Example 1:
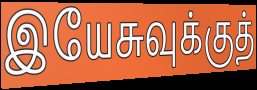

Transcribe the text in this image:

இயேசுவுக்குத்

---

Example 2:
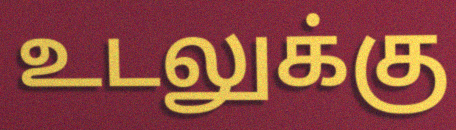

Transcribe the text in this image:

உடலுக்கு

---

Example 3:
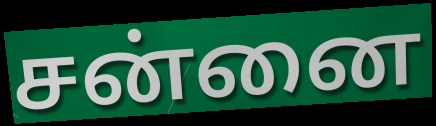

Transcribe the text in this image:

சன்னை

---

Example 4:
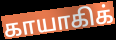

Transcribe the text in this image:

காயாகிக்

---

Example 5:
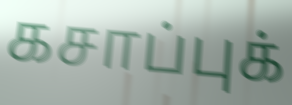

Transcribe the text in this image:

கசாப்புக்